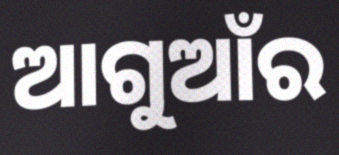
ଆଗୁଆଁର